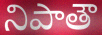
నిపాతౌ